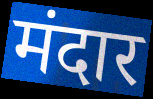
मंदार